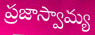
ప్రజాస్వామ్య